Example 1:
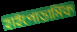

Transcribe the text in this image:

হাইপোডার্মিক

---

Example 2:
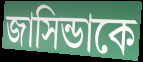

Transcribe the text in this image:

জাসিন্ডাকে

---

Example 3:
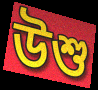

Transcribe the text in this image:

উশু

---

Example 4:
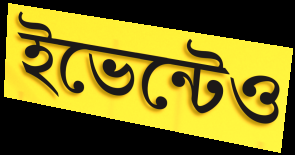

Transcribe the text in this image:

ইভেন্টেও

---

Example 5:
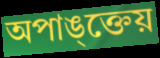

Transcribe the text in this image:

অপাঙ্‌ক্তেয়